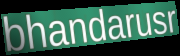
bhandarusr